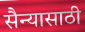
सैन्यासाठी